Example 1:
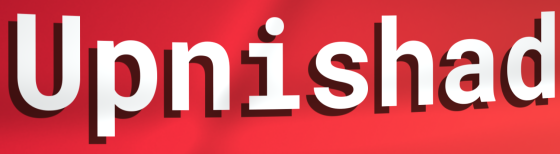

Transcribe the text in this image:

Upnishad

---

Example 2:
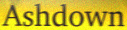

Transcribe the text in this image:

Ashdown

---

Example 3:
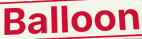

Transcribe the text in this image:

Balloon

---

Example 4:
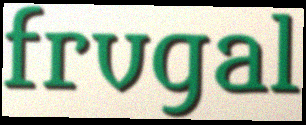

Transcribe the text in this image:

frugal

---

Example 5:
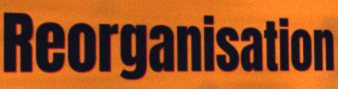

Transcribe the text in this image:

Reorganisation